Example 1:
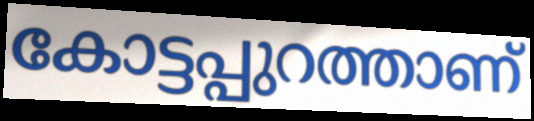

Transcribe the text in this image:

കോട്ടപ്പുറത്താണ്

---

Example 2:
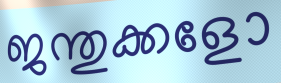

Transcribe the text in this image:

ജന്തുക്കളോ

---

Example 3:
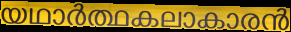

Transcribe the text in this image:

യഥാർത്ഥകലാകാരൻ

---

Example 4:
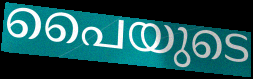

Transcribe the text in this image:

പൈയുടെ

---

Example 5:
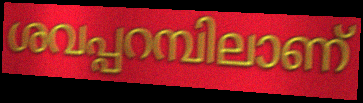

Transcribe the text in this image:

ശവപ്പറമ്പിലാണ്